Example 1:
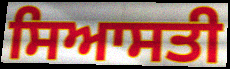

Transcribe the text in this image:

ਸਿਆਸਤੀ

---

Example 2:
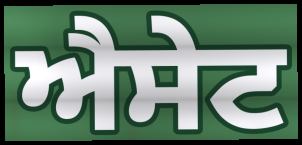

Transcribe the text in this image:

ਐਸੇਟ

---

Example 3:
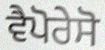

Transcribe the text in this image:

ਵੈਪੋਰੇਸੋ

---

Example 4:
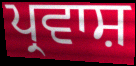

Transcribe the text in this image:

ਪ੍ਰਵਾਸ਼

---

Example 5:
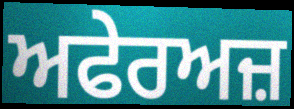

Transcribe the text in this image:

ਅਫੇਰਅਜ਼